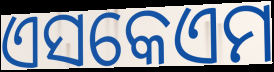
ଏସକେଏମ